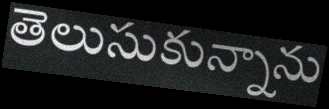
తెలుసుకున్నాను